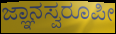
ಜ್ಞಾನಸ್ವರೂಪೀ